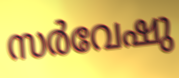
സർവേഷു